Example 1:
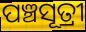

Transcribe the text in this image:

ପଞ୍ଚସୂତ୍ରୀ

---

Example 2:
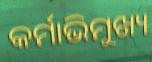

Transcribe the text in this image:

କର୍ମାଭିମୁଖ୍ୟ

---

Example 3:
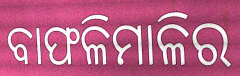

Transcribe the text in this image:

ବାଫଳିମାଳିର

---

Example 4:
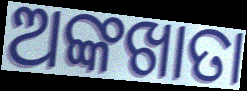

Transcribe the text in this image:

ଅଙ୍କଖାତା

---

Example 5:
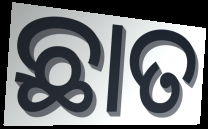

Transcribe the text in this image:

ଛାତ